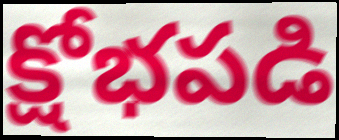
క్షోభపడి